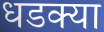
धडक्या